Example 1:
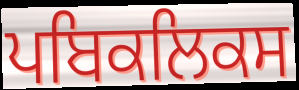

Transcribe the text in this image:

ਪਬਿਕਲਿਕਸ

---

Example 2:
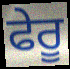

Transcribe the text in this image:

ਫੇਰੂ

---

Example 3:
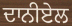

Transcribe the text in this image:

ਦਾਨੀਏਲ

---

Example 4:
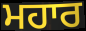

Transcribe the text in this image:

ਮਹਾਰ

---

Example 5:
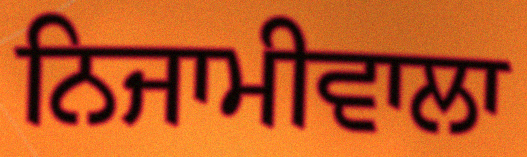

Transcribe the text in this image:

ਨਿਜਾਮੀਵਾਲਾ